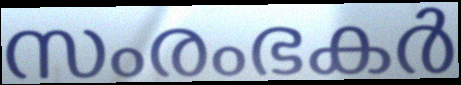
സംരംഭകർ